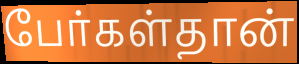
பேர்கள்தான்